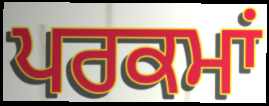
ਪਰਕਮਾਂ